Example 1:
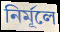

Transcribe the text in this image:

নির্মূলে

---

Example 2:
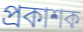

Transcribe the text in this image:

প্রকাশক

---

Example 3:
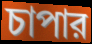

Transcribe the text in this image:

চাপার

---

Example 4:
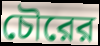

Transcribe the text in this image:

চৌরের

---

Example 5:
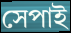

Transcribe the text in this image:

সেপাই